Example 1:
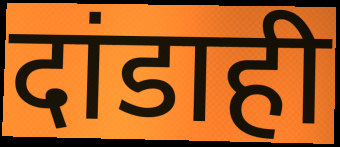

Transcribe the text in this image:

दांडाही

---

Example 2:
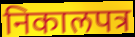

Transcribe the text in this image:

निकालपत्र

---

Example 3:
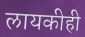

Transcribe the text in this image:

लायकीही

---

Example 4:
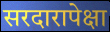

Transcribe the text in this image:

सरदारापेक्षा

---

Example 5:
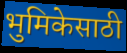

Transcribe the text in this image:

भुमिकेसाठी